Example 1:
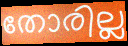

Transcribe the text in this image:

തോരില്ല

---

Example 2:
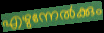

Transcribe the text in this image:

എഴുന്നേൽക്കും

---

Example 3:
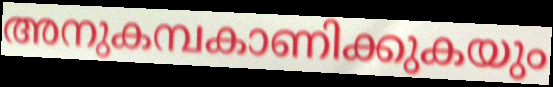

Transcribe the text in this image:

അനുകമ്പകാണിക്കുകയും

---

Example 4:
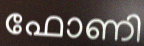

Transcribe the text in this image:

ഫോണി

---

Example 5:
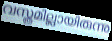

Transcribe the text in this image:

വസ്ത്രമില്ലായിരുന്നു